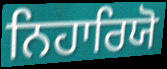
ਨਿਹਾਰਿਯੋ